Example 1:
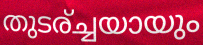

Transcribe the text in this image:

തുടര്ച്ചയായും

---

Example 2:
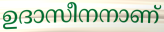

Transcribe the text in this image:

ഉദാസീനനാണ്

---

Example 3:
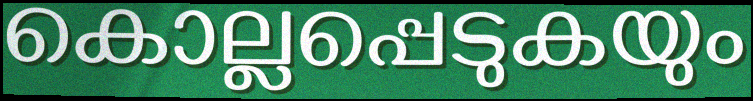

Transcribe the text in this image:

കൊല്ലപ്പെടുകയും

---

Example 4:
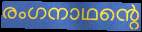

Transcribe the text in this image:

രംഗനാഥന്റെ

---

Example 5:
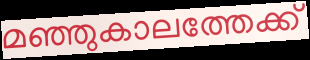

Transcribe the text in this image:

മഞ്ഞുകാലത്തേക്ക്